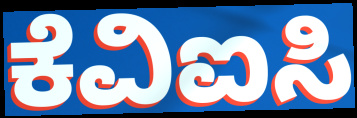
ಕೆವಿಐಸಿ